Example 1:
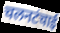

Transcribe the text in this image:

चलनटंचाई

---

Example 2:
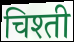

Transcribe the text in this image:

चिश्ती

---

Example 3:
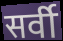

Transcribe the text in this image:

सर्वी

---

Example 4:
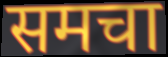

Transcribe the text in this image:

समचा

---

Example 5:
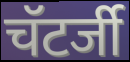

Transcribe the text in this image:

चॅटर्जी